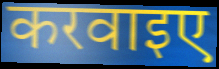
करवाइए